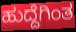
ಹುದ್ದೆಗಿಂತ